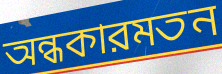
অন্ধকারমতন